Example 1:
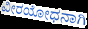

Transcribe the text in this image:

ವೀರಯೋಧನಾಗಿ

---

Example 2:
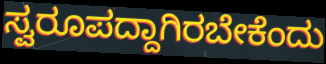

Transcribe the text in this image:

ಸ್ವರೂಪದ್ದಾಗಿರಬೇಕೆಂದು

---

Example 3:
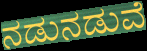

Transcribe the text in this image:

ನಡುನಡುವೆ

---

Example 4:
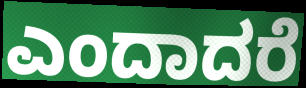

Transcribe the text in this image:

ಎಂದಾದರೆ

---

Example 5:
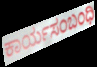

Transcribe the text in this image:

ಕಾರ್ಯಸಂಬಂಧಿ